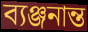
ব্যঞ্জনান্ত